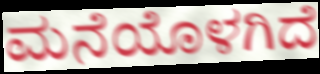
ಮನೆಯೊಳಗಿದೆ